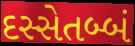
દસ્સેતબ્બં